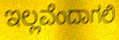
ಇಲ್ಲವೆಂದಾಗಲಿ